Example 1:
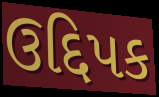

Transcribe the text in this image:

ઉદ્દિપક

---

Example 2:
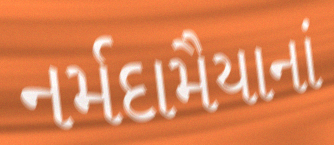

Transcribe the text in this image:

નર્મદામૈયાનાં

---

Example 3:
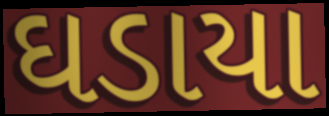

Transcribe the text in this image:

ઘડાયા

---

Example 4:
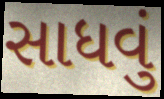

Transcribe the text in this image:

સાધવું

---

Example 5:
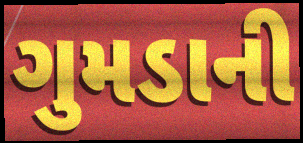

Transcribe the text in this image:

ગુમડાની